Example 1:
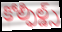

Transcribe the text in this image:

కోల్ఫీల్డ్స్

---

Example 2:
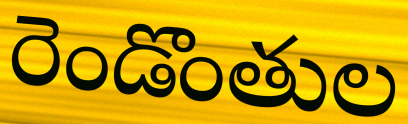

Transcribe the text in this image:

రెండొంతుల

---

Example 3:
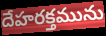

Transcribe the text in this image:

దేహరక్తమును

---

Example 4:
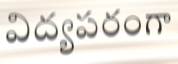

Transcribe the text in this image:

విద్యపరంగా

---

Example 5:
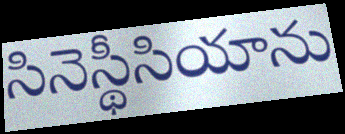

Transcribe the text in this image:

సినెస్థీసియాను